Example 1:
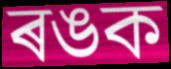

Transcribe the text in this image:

ৰঙক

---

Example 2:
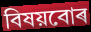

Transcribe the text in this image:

বিষয়বোৰ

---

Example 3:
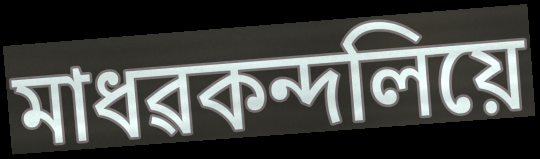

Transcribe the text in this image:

মাধৱকন্দলিয়ে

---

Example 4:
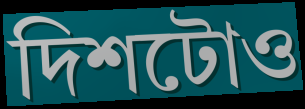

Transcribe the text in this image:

দিশটোও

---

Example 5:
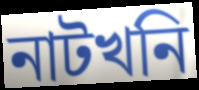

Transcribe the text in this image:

নাটখনি